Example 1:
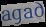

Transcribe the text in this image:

agad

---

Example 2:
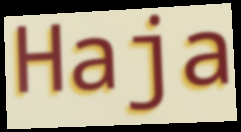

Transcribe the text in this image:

Haja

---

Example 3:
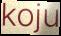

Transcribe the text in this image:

koju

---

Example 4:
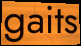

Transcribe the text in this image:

gaits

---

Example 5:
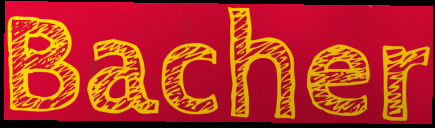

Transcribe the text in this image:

Bacher